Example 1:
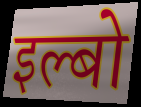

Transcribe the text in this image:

इल्बो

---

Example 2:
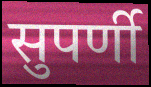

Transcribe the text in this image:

सुपर्णी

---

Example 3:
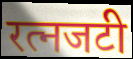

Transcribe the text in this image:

रत्नजटी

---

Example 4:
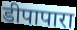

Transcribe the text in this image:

डीपापारा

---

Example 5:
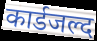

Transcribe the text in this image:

कार्डजल्द